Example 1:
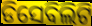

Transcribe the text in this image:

ଡିସେବିଲିଟି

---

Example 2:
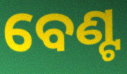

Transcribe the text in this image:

ବେଣ୍ଟ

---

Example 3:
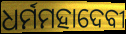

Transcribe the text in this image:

ଧର୍ମମହାଦେବୀ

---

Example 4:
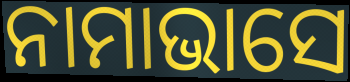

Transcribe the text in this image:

ନାମାଭାସେ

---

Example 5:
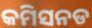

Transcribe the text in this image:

କମିସନଡ